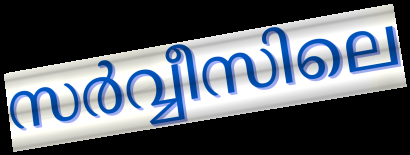
സർവ്വീസിലെ